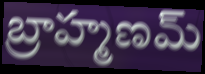
బ్రాహ్మణమ్